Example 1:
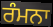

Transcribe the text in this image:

ਰੰਮਨਾ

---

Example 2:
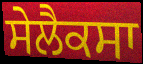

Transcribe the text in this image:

ਸੇਲੈਕਸਾ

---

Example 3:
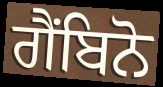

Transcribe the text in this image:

ਗੈਂਬਿਨੋ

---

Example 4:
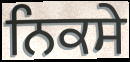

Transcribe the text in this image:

ਨਿਕਸੇ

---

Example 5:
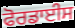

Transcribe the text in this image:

ਫੋਰਡਾਈਸ